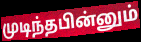
முடிந்தபின்னும்